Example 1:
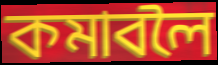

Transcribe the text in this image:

কমাবলৈ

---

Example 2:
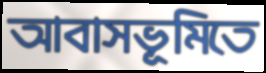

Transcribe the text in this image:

আবাসভূমিতে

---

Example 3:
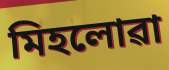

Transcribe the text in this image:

মিহলোৱা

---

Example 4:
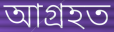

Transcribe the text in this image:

আগ্ৰহত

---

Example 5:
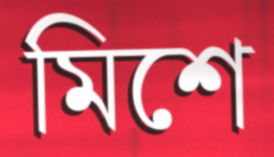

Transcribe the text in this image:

মিশে